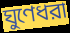
ঘুণেধরা